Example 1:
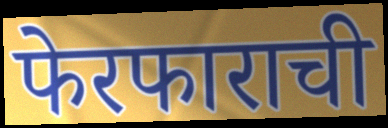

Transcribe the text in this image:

फेरफाराची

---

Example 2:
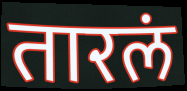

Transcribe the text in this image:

तारलं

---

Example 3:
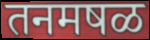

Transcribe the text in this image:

तनमषळ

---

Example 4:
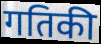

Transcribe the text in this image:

गतिकी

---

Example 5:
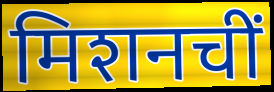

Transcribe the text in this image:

मिशनचीं